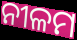
ନୀଳମ